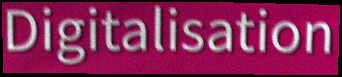
Digitalisation